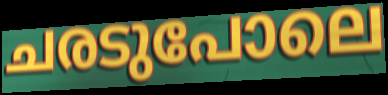
ചരടുപോലെ